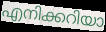
എനിക്കറിയാ